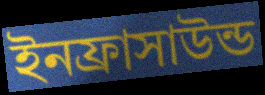
ইনফ্রাসাউন্ড